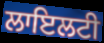
ਲਾਇਲਟੀ